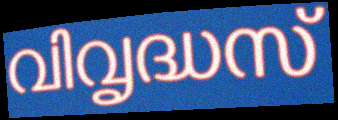
വിവൃദ്ധസ്